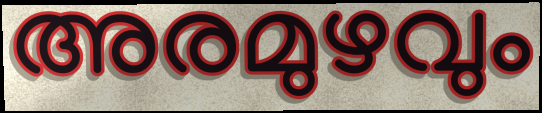
അരമുഴവും